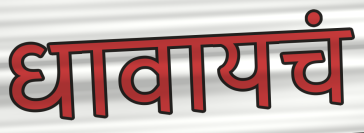
धावायचं